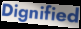
Dignified